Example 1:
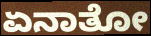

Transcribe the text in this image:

ಏನಾತೋ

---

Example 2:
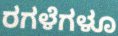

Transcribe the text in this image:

ರಗಳೆಗಳೂ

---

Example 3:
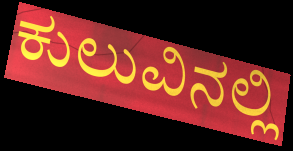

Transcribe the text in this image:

ಕುಲುವಿನಲ್ಲಿ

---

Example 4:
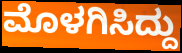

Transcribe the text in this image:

ಮೊಳಗಿಸಿದ್ದು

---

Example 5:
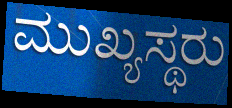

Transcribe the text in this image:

ಮುಖ್ಯಸ್ಥರು